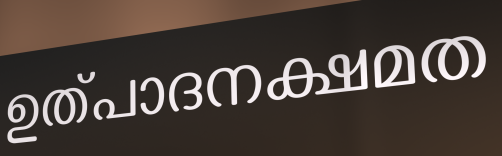
ഉത്പാദനക്ഷമത